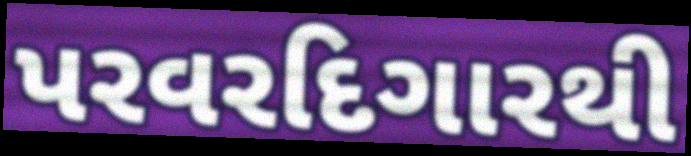
પરવરદિગારથી